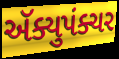
ઍક્યુપંક્ચર